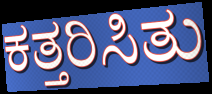
ಕತ್ತರಿಸಿತು